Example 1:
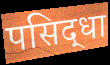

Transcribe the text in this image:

पसिद्धा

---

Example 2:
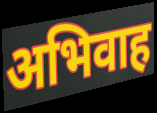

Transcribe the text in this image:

अभिवाह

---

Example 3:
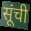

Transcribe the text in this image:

सूंची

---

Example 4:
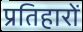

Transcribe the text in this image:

प्रतिहारों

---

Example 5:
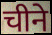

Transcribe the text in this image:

चीने